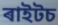
ৰাইটচ